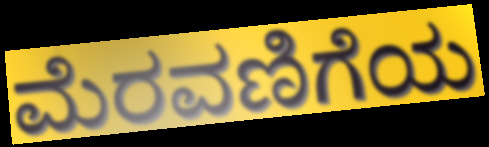
ಮೆರವಣಿಗೆಯ